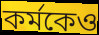
কর্মকেও